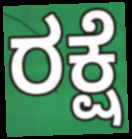
ರಕ್ಷೆ